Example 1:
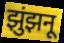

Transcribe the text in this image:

झुंझनू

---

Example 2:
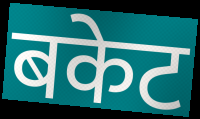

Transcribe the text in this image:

बकेट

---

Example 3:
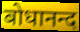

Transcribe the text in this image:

बोधानन्द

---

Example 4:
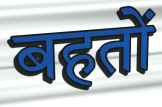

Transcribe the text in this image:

बहतों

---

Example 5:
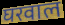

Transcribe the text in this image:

घरवाल